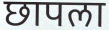
छापला